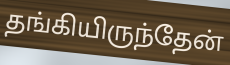
தங்கியிருந்தேன்